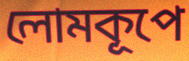
লোমকূপে